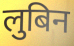
लुबिन